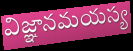
విజ్ఞానమయస్య